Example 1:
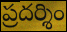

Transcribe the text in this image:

ప్రదర్శిం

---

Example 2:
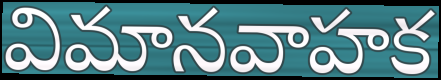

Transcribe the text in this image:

విమానవాహక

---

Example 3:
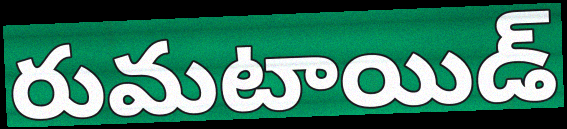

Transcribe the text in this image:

రుమటాయిడ్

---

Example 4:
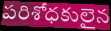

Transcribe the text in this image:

పరిశోధకులైన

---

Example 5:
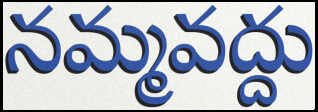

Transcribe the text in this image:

నమ్మవద్దు